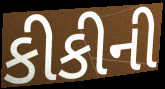
કીકીની